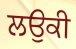
ਲਉਕੀ